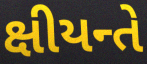
ક્ષીયન્તે